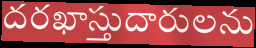
దరఖాస్తుదారులను